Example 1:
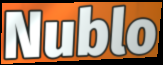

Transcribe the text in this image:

Nublo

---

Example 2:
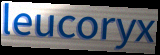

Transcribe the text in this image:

leucoryx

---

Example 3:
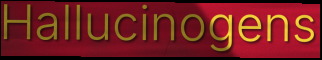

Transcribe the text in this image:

Hallucinogens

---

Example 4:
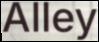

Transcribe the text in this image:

Alley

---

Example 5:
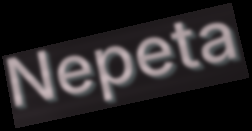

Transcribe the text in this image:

Nepeta